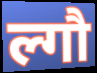
ल्गौ